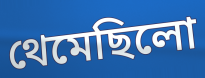
থেমেছিলো